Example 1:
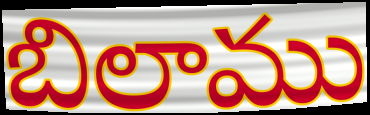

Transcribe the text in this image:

బిలాము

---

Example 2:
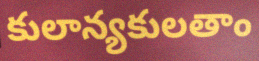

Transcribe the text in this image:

కులాన్యకులతాం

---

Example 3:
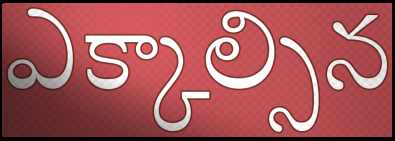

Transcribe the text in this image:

ఎక్కాల్సిన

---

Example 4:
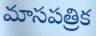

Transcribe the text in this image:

మాసపత్రిక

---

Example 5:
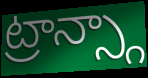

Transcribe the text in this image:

ట్రాన్స్గా